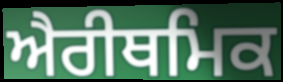
ਐਰੀਥਮਿਕ